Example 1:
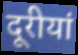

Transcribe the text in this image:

दूरीयां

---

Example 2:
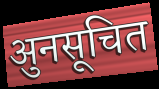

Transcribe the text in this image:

अुनसूचित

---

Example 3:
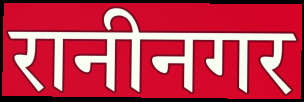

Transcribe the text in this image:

रानीनगर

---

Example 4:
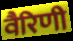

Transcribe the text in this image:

वैरिणी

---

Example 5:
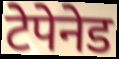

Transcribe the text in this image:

टेपेनेड